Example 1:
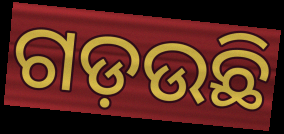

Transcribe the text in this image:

ଗଡ଼ଉଛି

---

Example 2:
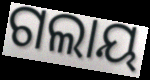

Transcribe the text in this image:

ଗଲାୟ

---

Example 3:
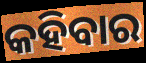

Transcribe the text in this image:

କହିବାର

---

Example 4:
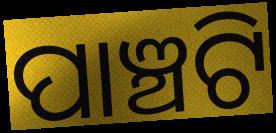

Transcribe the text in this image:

ପାଞ୍ଚଟି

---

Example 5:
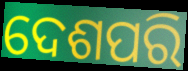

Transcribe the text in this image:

ଦେଶପରି